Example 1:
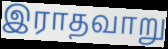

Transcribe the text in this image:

இராதவாறு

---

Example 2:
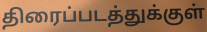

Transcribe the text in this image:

திரைப்படத்துக்குள்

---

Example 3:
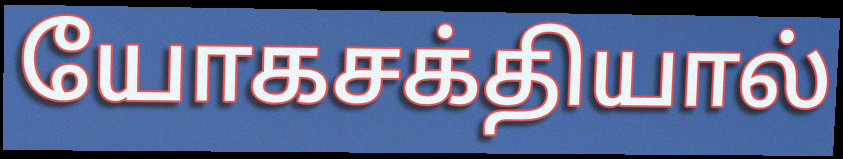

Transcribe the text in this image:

யோகசக்தியால்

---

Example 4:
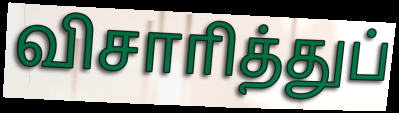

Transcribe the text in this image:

விசாரித்துப்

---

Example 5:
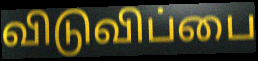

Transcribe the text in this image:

விடுவிப்பை